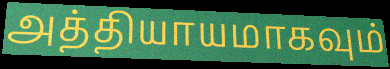
அத்தியாயமாகவும்